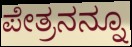
ಪೇತ್ರನನ್ನೂ